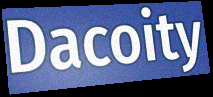
Dacoity